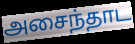
அசைந்தாட